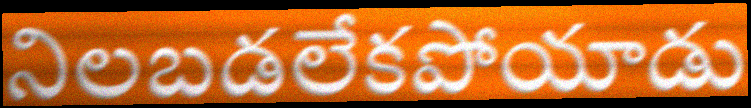
నిలబడలేకపోయాడు